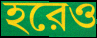
হরেও